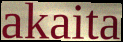
akaita